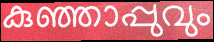
കുഞ്ഞാപ്പുവും